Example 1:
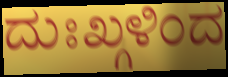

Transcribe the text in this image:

ದುಃಖ್ಗಳಿಂದ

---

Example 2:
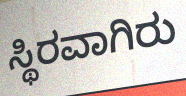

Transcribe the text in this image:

ಸ್ಥಿರವಾಗಿರು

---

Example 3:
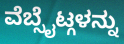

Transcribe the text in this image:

ವೆಬ್ಸೈಟ್ಗಳನ್ನು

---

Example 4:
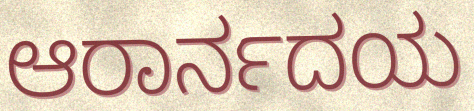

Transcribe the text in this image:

ಆರಾರ್ನದಯ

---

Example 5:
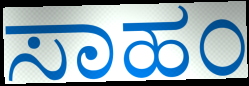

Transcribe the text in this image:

ಸಾಹಂ